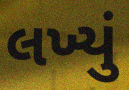
લખ્યું